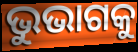
ଭୁଭାଗକୁ